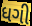
ધગી